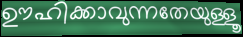
ഊഹിക്കാവുന്നതേയുള്ളൂ